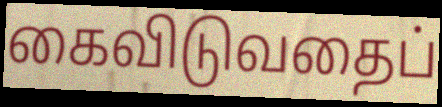
கைவிடுவதைப்